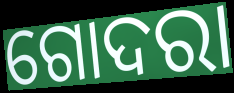
ଗୋଦରା